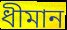
ধীমান